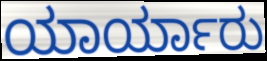
ಯಾರ್ಯಾರು